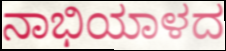
ನಾಭಿಯಾಳದ